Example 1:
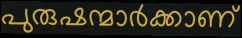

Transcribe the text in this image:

പുരുഷന്മാർക്കാണ്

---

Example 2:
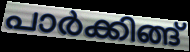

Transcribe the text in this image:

പാർക്കിങ്ങ്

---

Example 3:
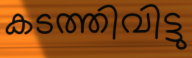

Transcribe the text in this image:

കടത്തിവിട്ടു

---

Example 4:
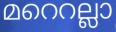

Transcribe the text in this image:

മറെറല്ലാ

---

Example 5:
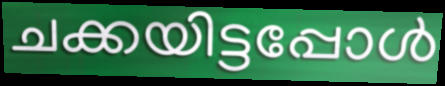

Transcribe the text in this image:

ചക്കയിട്ടപ്പോൾ